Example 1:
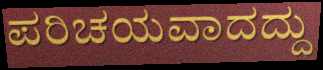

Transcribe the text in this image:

ಪರಿಚಯವಾದದ್ದು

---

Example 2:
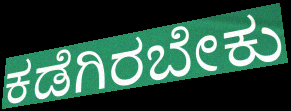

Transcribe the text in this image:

ಕಡೆಗಿರಬೇಕು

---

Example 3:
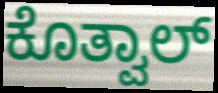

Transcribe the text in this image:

ಕೊತ್ವಾಲ್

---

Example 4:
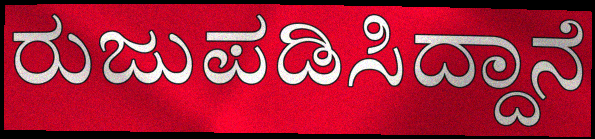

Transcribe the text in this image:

ರುಜುಪಡಿಸಿದ್ದಾನೆ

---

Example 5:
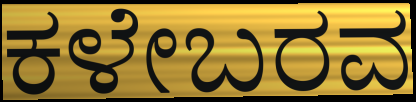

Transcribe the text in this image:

ಕಳೇಬರವ